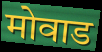
मोवाड